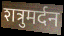
शत्रुमर्दन